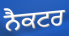
ਨੈਕਟਰ